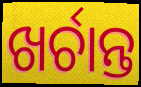
ଖର୍ଚାନ୍ତ